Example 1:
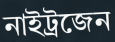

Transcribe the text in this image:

নাইট্ৰজেন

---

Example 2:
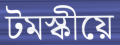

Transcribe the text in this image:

টমস্কীয়ে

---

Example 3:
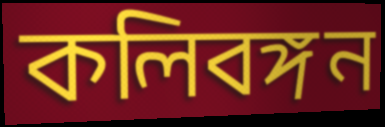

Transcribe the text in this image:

কলিবঙ্গন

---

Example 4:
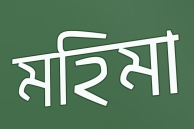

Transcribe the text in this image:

মহিমা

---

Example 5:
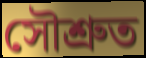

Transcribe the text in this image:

সৌশ্ৰুত